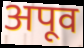
अपूव